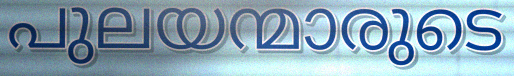
പുലയന്മാരുടെ